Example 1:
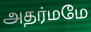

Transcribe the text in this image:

அதர்மமே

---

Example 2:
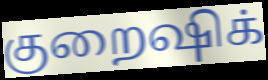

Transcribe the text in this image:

குறைஷிக்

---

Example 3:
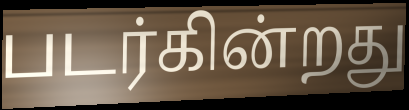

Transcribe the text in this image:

படர்கின்றது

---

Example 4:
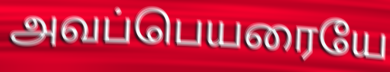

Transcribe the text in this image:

அவப்பெயரையே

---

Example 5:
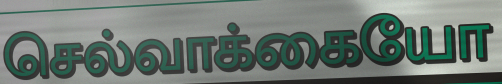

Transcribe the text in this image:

செல்வாக்கையோ